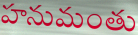
హనుమంతు